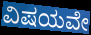
ವಿಷಯವೇ